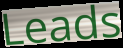
Leads